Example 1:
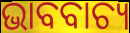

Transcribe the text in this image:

ଭାବବାଚ୍ୟ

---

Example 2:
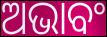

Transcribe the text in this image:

ଅଭାବଂ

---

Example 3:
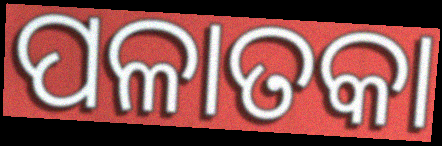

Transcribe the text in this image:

ପଳାତକା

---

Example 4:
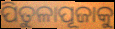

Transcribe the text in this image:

ପିତୁଳାପୂଜାକୁ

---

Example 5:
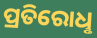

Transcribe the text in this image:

ପ୍ରତିରୋଧୢ